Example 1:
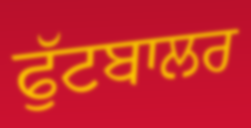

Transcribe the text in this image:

ਫੁੱਟਬਾਲਰ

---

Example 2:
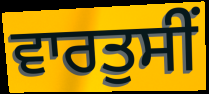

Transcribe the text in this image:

ਵਾਰਤੁਸੀਂ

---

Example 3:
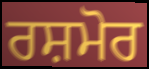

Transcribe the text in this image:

ਰਸ਼ਮੋਰ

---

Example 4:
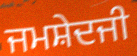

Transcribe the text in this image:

ਜਮਸ਼ੇਦਜੀ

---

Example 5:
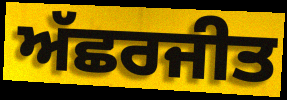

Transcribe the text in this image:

ਅੱਛਰਜੀਤ